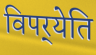
विपर्येति